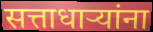
सत्ताधाऱ्यांना